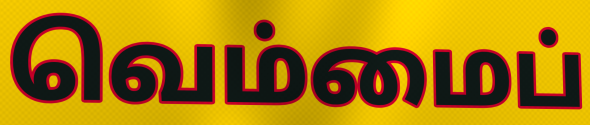
வெம்மைப்